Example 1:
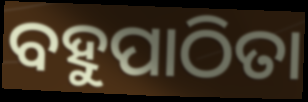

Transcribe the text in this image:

ବହୁପାଠିତା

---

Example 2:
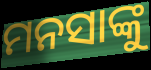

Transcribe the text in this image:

ମନସାଙ୍କୁ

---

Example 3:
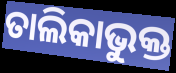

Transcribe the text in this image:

ତାଲିକାଭୁକ୍ତ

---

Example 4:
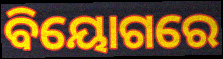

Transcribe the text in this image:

ବିୟୋଗରେ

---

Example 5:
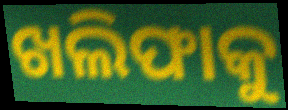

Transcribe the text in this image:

ଖଲିଫାକୁ